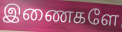
இணைகளே